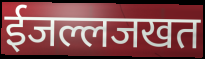
ईजल्लजखत